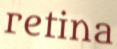
retina